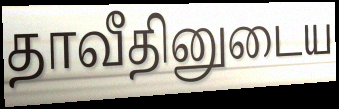
தாவீதினுடைய